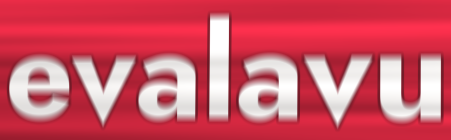
evalavu